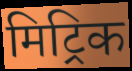
मिट्रिक